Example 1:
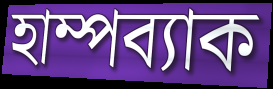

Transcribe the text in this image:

হাম্পব্যাক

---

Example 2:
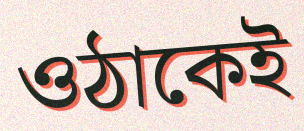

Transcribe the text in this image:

ওঠাকেই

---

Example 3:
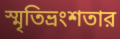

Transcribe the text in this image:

স্মৃতিভ্রংশতার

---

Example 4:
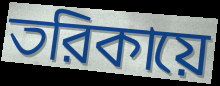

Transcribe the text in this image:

তরিকায়ে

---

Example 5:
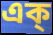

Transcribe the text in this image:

এক্